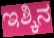
ಇಶ್ಕಿನ